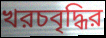
খরচবৃদ্ধির